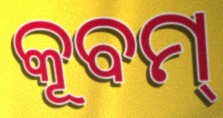
କୂବମ୍